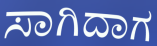
ಸಾಗಿದಾಗ